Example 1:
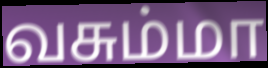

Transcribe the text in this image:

வசும்மா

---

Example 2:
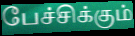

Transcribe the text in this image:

பேச்சிக்கும்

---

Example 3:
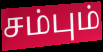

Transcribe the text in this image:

சம்பும்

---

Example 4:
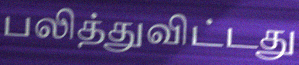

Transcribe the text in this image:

பலித்துவிட்டது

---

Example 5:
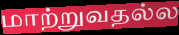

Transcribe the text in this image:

மாற்றுவதல்ல